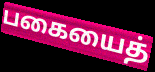
பகையைத்